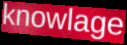
knowlage